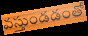
వస్తుండడంతో